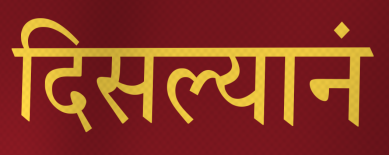
दिसल्यानं